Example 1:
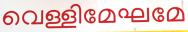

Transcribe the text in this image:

വെള്ളിമേഘമേ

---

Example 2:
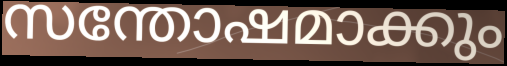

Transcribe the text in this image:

സന്തോഷമാക്കും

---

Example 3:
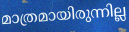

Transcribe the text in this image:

മാത്രമായിരുന്നില്ല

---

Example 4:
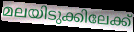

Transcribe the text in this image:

മലയിടുക്കിലേക്ക്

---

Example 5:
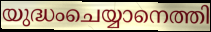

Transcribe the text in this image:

യുദ്ധംചെയ്യാനെത്തി